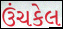
ઉંચકેલ